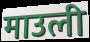
माउली